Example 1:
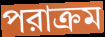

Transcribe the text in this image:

পরাক্রম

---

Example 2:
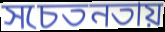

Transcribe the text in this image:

সচেতনতায়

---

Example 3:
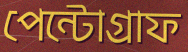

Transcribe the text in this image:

পেন্টোগ্রাফ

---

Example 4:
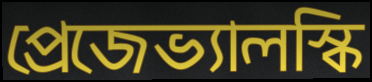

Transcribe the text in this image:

প্রেজেভ্যালস্কি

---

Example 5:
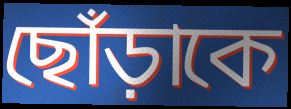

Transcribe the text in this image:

ছোঁড়াকে